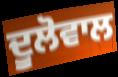
ਦੂਲੋਵਾਲ